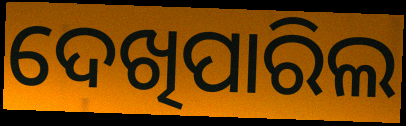
ଦେଖିପାରିଲ